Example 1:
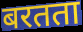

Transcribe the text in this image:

बरतता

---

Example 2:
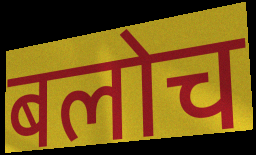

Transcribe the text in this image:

बलोच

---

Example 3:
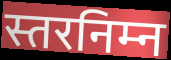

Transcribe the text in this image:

स्तरनिम्न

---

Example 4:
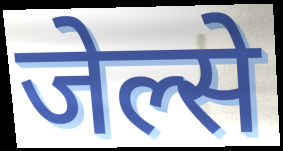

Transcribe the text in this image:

जेल्से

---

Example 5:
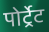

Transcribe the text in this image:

पोर्ट्रेट